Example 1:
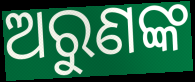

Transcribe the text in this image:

ଅରୁଣଙ୍କ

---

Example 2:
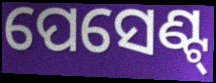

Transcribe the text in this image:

ପେସେଣ୍ଟ୍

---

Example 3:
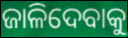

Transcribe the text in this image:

ଜାଳିଦେବାକୁ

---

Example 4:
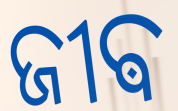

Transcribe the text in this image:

ଜୀଵ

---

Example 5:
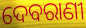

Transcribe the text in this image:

ଦେବରାଣୀ